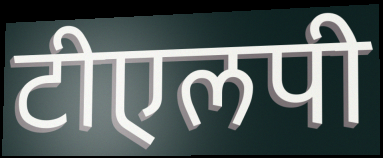
टीएलपी